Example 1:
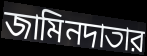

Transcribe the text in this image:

জামিনদাতার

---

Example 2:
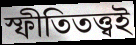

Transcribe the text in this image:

স্ফীতিতত্ত্বই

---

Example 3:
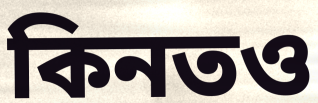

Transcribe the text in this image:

কিনতও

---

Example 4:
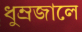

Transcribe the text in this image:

ধুম্রজালে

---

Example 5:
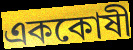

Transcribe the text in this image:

এককোষী